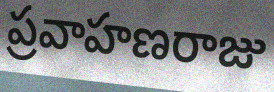
ప్రవాహణరాజు